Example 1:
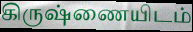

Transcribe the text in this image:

கிருஷ்ணையிடம்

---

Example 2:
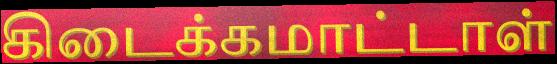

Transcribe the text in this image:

கிடைக்கமாட்டாள்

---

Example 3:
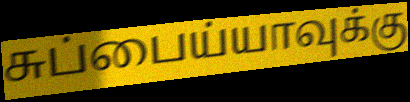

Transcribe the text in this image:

சுப்பைய்யாவுக்கு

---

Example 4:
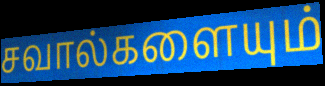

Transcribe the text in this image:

சவால்களையும்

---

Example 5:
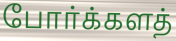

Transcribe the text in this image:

போர்க்களத்